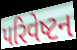
પરિવેષ્ટન